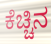
ಕೆಚ್ಚಿನ